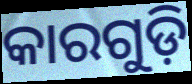
କାରଗୁଡ଼ି